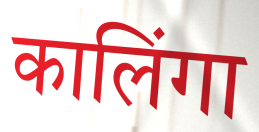
कालिंगा